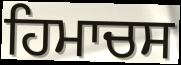
ਹਿਮਾਚਸ